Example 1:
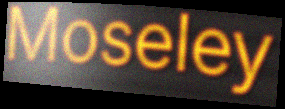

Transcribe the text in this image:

Moseley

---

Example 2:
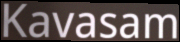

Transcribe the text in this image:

Kavasam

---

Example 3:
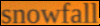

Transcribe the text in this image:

snowfall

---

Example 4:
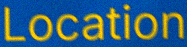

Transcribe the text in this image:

Location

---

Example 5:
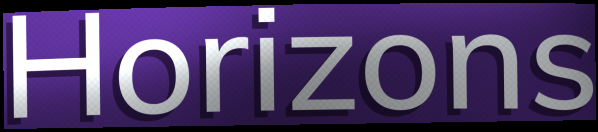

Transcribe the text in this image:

Horizons